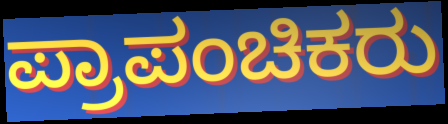
ಪ್ರಾಪಂಚಿಕರು